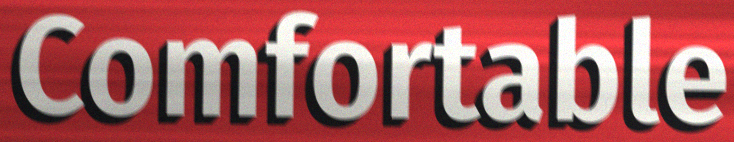
Comfortable